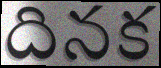
దినక